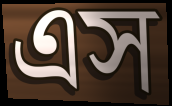
এস